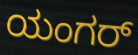
ಯಂಗರ್